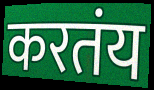
करतंय